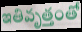
ఇతివృత్తంతో